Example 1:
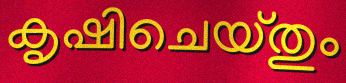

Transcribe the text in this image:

കൃഷിചെയ്തും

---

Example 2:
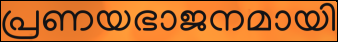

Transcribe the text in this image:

പ്രണയഭാജനമായി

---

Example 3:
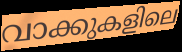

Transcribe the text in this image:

വാക്കുകളിലെ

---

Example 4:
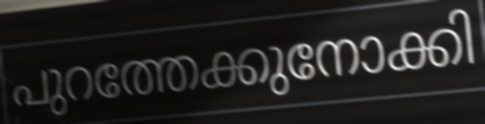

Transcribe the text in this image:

പുറത്തേക്കുനോക്കി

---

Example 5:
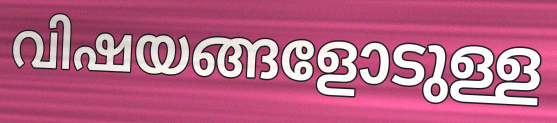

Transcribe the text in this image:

വിഷയങ്ങളോടുള്ള